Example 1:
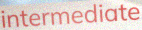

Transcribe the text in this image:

intermediate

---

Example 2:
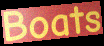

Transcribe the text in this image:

Boats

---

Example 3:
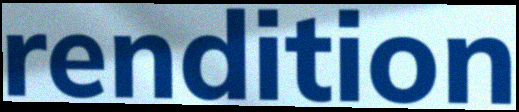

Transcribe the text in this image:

rendition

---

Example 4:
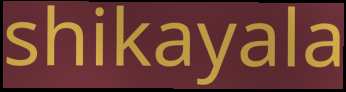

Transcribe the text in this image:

shikayala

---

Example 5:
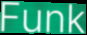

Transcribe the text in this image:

Funk